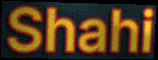
Shahi